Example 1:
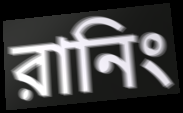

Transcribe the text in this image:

রানিং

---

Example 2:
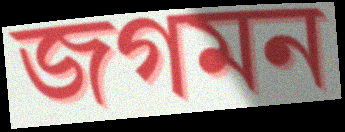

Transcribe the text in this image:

জগমন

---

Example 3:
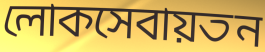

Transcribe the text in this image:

লোকসেবায়তন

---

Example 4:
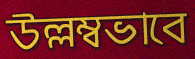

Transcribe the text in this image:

উল্লম্বভাবে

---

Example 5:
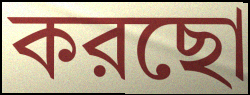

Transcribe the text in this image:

করছো